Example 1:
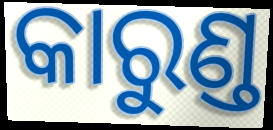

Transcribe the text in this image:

କାରୁଣ୍ଡ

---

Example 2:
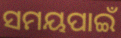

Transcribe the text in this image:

ସମୟପାଇଁ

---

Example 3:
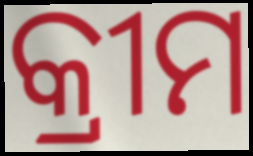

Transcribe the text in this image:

କ୍ରୀମ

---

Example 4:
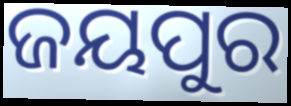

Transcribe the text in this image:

ଜୟପୁର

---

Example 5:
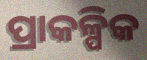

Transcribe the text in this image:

ପ୍ରାକଳ୍ପିକ